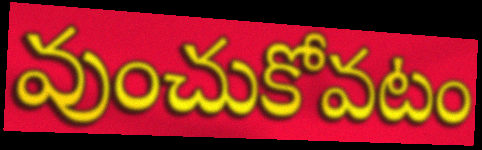
వుంచుకోవటం